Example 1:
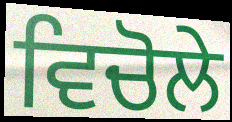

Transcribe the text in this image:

ਵਿਚੋਲੇ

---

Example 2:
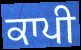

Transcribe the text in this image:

ਕਾਪੀ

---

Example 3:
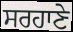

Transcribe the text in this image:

ਸਰਹਾਣੇ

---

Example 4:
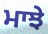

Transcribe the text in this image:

ਮਾਝੇ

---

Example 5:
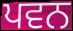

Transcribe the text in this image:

ਪਵਨ